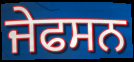
ਜੇਫਸਨ